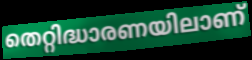
തെറ്റിദ്ധാരണയിലാണ്